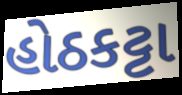
હોઠકટ્ટા